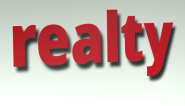
realty